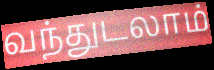
வந்துடலாம்